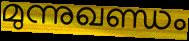
മുന്നുഖണ്ഡം